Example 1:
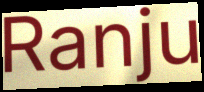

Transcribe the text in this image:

Ranju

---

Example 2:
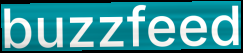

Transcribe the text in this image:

buzzfeed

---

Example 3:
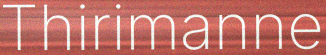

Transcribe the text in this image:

Thirimanne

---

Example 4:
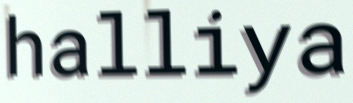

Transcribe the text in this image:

halliya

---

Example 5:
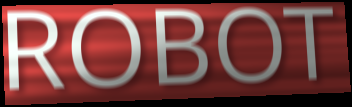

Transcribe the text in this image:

ROBOT